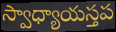
స్వాధ్యాయస్తప